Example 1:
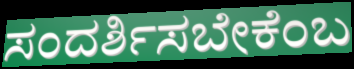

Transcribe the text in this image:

ಸಂದರ್ಶಿಸಬೇಕೆಂಬ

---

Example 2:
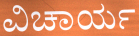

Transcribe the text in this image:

ವಿಚಾರ್ಯ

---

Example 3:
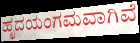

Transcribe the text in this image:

ಹೃದಯಂಗಮವಾಗಿವೆ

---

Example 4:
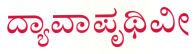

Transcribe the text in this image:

ದ್ಯಾವಾಪೃಥಿವೀ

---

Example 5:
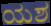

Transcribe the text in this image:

ಯಶ